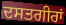
ਦਸਤਗੀਰਾਂ